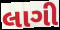
લાગી